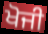
ਖੋਜੀ